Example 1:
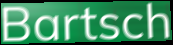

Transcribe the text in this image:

Bartsch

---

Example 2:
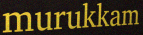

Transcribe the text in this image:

murukkam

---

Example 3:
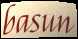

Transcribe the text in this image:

basun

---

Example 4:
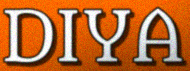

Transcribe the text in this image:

DIYA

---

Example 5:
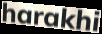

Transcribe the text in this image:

harakhi